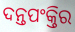
ଦନ୍ତପଂକ୍ତିର